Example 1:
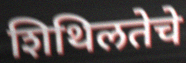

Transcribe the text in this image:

शिथिलतेचे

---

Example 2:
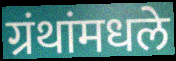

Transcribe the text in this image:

ग्रंथांमधले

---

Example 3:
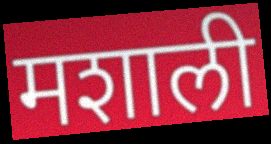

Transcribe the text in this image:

मशाली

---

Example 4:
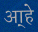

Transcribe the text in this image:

आ्हे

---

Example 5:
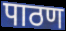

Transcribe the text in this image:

पाठण